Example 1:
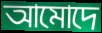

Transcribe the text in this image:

আমোদে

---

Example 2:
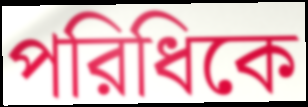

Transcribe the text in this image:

পরিধিকে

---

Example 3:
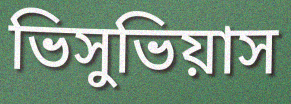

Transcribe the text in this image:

ভিসুভিয়াস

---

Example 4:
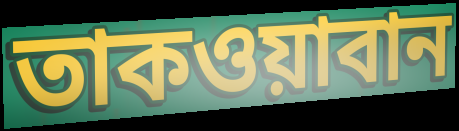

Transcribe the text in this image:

তাকওয়াবান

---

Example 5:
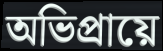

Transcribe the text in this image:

অভিপ্রায়ে